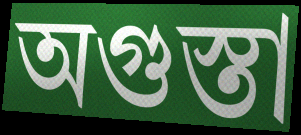
অগুস্তা